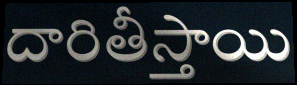
దారితీస్తాయి